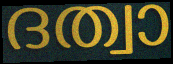
ദത്വാ